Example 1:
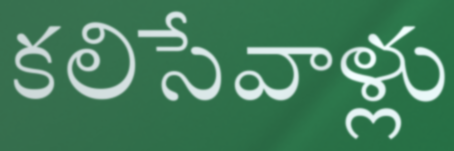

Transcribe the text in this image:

కలిసేవాళ్లు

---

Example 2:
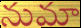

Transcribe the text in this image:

నుమా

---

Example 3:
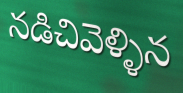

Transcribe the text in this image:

నడిచివెళ్ళిన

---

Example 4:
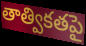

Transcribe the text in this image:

తాత్వికతపై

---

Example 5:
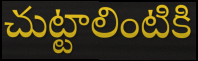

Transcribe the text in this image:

చుట్టాలింటికి